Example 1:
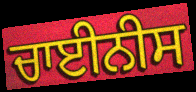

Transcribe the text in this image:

ਚਾਈਨੀਸ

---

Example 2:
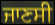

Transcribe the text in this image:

ਜਾਣਸੀ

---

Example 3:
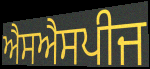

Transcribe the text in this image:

ਐਸਐਸਪੀਜ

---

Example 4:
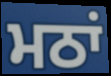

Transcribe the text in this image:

ਮਠਾਂ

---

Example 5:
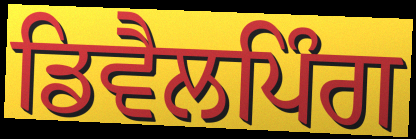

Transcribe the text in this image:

ਡਿਵੈਲਪਿੰਗ